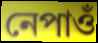
নেপাওঁ